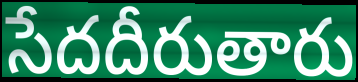
సేదదీరుతారు